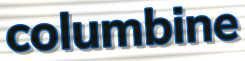
columbine